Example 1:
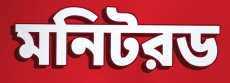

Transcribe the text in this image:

মনিটরড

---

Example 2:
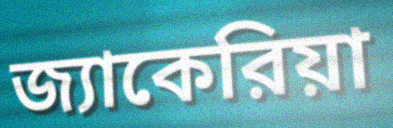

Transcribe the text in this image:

জ্যাকেরিয়া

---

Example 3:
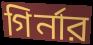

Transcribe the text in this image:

গির্নার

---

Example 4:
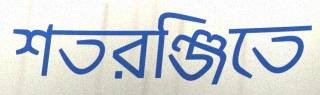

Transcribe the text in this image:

শতরঞ্জিতে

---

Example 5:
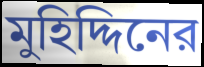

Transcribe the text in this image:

মুহিদ্দিনের